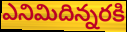
ఎనిమిదిన్నరకి